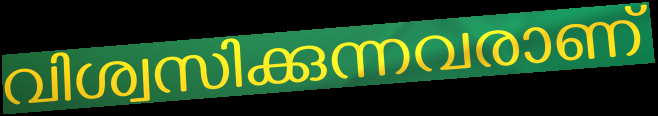
വിശ്വസിക്കുന്നവരാണ്